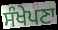
ਸੰਖੇਪਣਾ